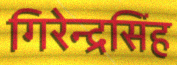
गिरेन्द्रसिंह